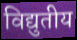
विद्युतीय